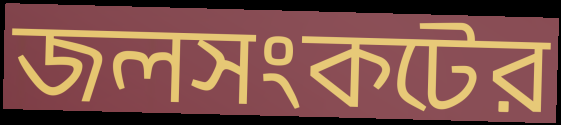
জলসংকটের